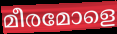
മീരമോളെ